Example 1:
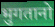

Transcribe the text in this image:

भुगतानो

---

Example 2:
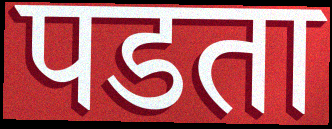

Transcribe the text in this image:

पडता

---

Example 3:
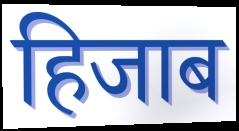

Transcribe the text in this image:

हिजाब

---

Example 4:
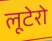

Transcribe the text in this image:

लूटेरो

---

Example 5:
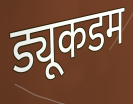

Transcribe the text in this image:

ड्यूकडम